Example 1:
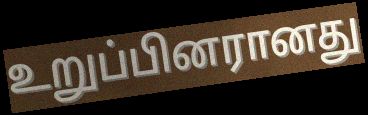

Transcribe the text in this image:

உறுப்பினரானது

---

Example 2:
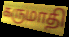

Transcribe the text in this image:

கருமாதி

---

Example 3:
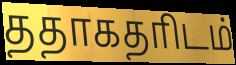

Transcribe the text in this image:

ததாகதரிடம்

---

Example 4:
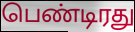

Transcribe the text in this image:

பெண்டிரது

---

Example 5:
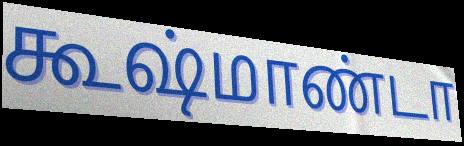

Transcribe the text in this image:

கூஷ்மாண்டா